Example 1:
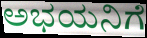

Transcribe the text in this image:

ಅಭಯನಿಗೆ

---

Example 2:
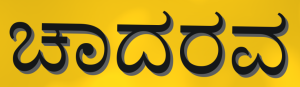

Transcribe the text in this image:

ಚಾದರವ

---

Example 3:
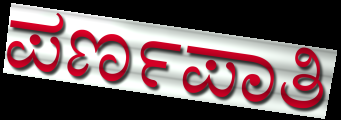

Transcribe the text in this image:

ಪರ್ಣಪಾತಿ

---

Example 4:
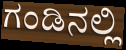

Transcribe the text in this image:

ಗಂಡಿನಲ್ಲಿ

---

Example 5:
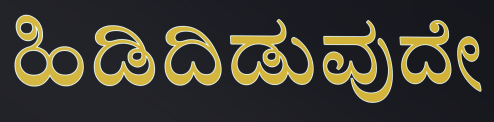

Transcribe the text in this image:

ಹಿಡಿದಿಡುವುದೇ